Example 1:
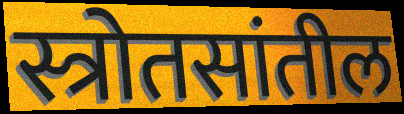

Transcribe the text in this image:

स्त्रोतसांतील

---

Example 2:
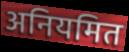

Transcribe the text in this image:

अनियमित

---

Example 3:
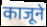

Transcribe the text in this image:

काजूने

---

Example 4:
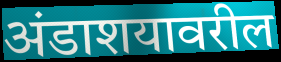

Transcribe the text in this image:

अंडाशयावरील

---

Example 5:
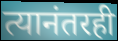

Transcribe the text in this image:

त्यानंतरही